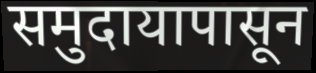
समुदायापासून